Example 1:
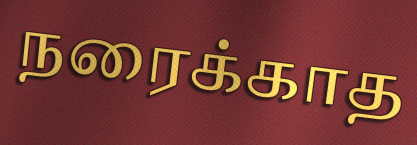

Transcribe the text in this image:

நரைக்காத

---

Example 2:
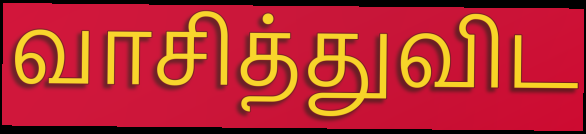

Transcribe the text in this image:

வாசித்துவிட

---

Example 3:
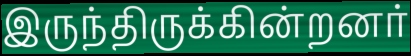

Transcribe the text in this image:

இருந்திருக்கின்றனர்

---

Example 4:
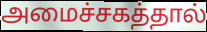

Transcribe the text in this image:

அமைச்சகத்தால்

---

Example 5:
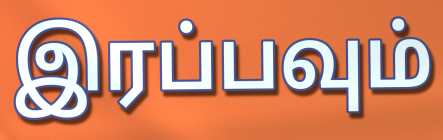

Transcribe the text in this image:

இரப்பவும்